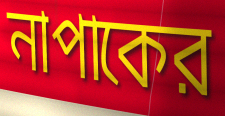
নাপাকের